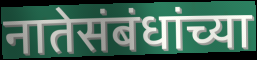
नातेसंबंधांच्या